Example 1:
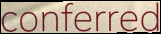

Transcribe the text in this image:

conferred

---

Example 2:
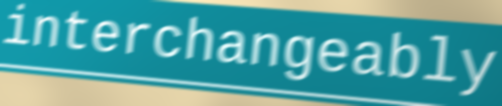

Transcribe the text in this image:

interchangeably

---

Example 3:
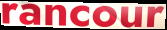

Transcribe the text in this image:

rancour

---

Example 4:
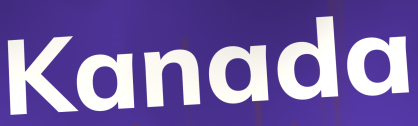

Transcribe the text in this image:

Kanada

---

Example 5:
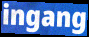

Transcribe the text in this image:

ingang